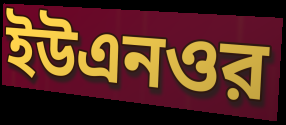
ইউএনওর